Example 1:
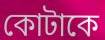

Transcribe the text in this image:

কোটাকে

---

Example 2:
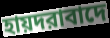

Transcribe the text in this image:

হায়দরাবাদে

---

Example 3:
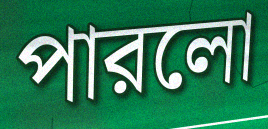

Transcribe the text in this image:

পারলো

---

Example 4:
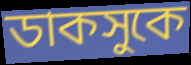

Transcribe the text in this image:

ডাকসুকে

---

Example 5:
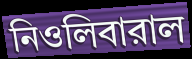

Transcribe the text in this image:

নিওলিবারাল